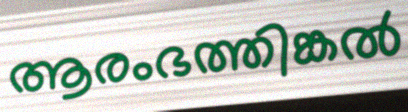
ആരംഭത്തിങ്കൽ